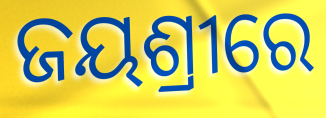
ଜୟଶ୍ରୀରେ